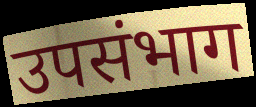
उपसंभाग